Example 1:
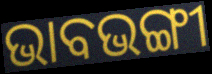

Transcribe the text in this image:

ଭାବଭଙ୍ଗୀ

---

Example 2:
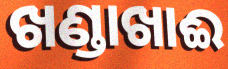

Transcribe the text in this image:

ଖଣ୍ଡାଖାଈ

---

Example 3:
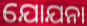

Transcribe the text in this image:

ଯୋଯନା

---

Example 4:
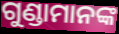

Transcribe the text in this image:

ଗୁଣ୍ଡାମାନଙ୍କ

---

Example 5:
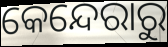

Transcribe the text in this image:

କେନ୍ଦେରାରୁ